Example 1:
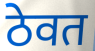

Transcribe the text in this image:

ठेवत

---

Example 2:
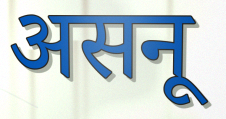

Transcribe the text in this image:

असनू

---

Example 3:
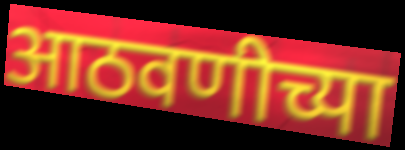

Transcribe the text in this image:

आठवणीच्या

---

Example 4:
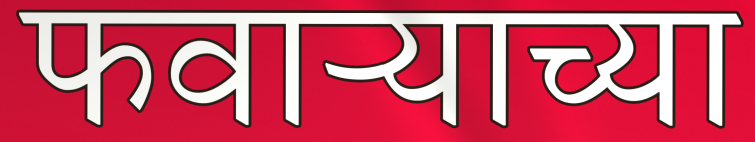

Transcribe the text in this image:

फवाऱ्याच्या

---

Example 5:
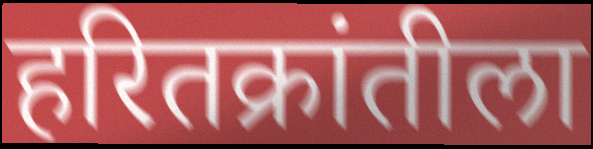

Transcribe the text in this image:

हरितक्रांतीला